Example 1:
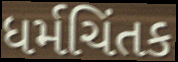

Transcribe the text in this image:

ધર્મચિંતક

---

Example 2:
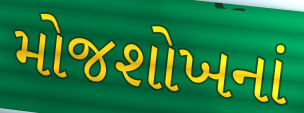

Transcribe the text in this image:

મોજશોખનાં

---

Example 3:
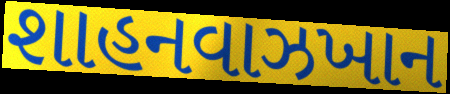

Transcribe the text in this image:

શાહનવાઝખાન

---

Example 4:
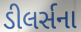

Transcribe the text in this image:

ડીલર્સના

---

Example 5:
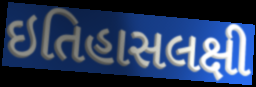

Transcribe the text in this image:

ઇતિહાસલક્ષી